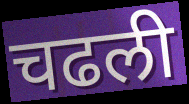
चढली